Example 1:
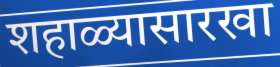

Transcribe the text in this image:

शहाळ्यासारखा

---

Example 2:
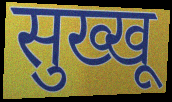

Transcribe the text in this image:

सुख्खू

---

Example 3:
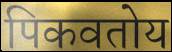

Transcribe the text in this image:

पिकवतोय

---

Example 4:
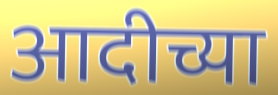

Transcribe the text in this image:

आदीच्या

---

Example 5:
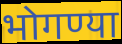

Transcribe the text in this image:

भोगण्या